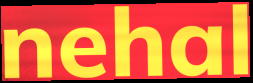
nehal